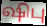
ஷிபு